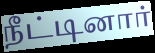
நீட்டினார்